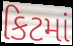
કિટમાં